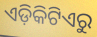
ଏଡ଼ିକିଟିଏରୁ